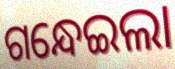
ଗନ୍ଧେଇଲା